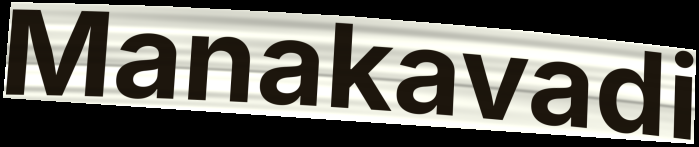
Manakavadi